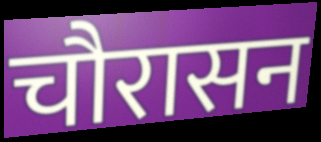
चौरासन